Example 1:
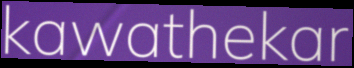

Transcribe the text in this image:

kawathekar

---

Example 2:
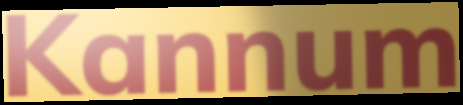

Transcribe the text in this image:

Kannum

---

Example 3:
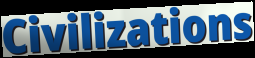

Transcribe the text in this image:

Civilizations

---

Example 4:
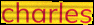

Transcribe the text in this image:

charles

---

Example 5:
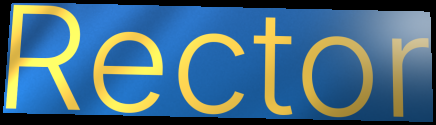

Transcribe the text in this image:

Rector